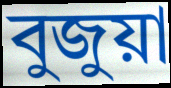
বুজুয়া